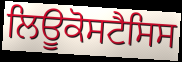
ਲਿਊਕੋਸਟੈਸਿਸ